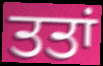
ਤਤਾਂ